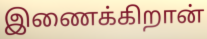
இணைக்கிறான்